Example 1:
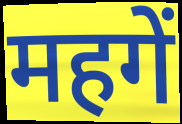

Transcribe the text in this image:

महगें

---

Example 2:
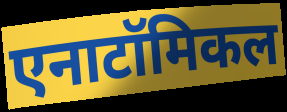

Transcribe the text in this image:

एनाटॉमिकल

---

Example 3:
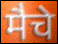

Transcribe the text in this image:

मैचे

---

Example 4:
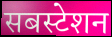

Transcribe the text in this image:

सबस्टेशन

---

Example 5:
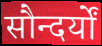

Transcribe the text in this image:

सौन्दर्यों